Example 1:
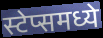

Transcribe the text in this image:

स्टेप्समध्ये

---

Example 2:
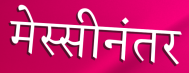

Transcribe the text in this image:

मेस्सीनंतर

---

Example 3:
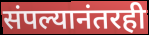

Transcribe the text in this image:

संपल्यानंतरही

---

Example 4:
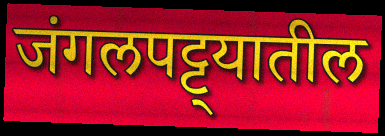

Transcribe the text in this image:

जंगलपट्ट्यातील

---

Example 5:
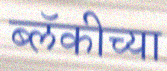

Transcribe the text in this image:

ब्लॅकीच्या